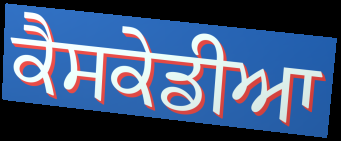
ਕੈਸਕੇਡੀਆ